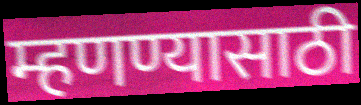
म्हणण्यासाठी